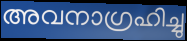
അവനാഗ്രഹിച്ചു